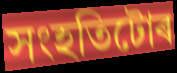
সংহতিটোৰ